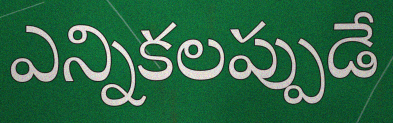
ఎన్నికలప్పుడే